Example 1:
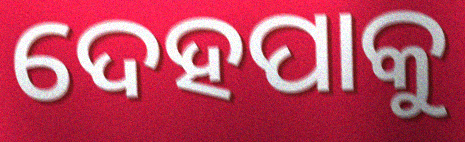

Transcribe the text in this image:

ଦେହପାକୁ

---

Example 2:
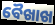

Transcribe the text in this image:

ବୈଖାଖ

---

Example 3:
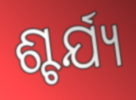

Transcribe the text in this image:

ଶ୍ଚର୍ଯ୍ୟ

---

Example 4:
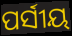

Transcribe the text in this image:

ପର୍ସୀୟ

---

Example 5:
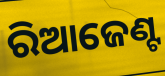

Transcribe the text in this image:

ରିଆଜେଣ୍ଟ